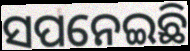
ସପନେଇଛି